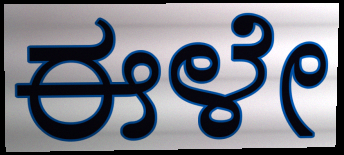
ಈಳೇ